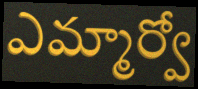
ఎమ్మార్వో